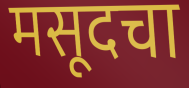
मसूदचा